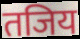
तजिय